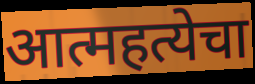
आत्महत्येचा